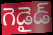
గెడైడ్